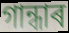
গান্ধাৰ